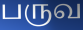
பருவ